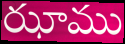
ఝాము